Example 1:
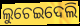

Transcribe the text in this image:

ଲୁଚେଇଦେଲି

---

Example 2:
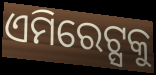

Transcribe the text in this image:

ଏମିରେଟ୍ସକୁ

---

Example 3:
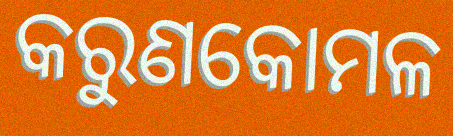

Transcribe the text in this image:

କରୁଣକୋମଳ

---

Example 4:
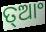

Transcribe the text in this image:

ତ୍ଆଂ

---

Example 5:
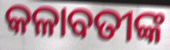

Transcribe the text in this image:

କଳାବତୀଙ୍କ